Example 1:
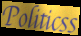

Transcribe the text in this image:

Politicss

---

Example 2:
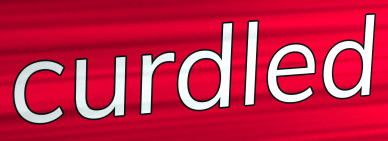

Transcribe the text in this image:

curdled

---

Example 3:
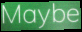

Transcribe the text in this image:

Maybe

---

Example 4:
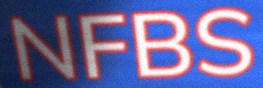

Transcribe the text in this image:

NFBS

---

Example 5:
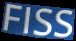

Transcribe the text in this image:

FISS